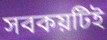
সবকয়টিই